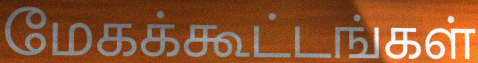
மேகக்கூட்டங்கள்